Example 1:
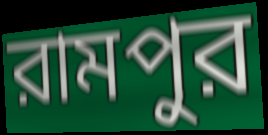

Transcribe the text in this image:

রামপুর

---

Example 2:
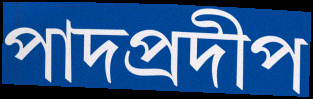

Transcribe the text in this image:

পাদপ্রদীপ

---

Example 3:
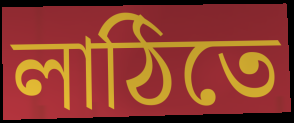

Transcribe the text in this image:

লাঠিতে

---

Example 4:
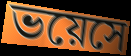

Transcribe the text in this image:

ভয়েসে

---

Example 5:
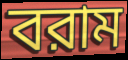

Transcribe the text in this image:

বরাম